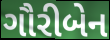
ગૌરીબેન